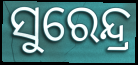
ସୁରେନ୍ଦ୍ର